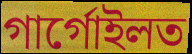
গাৰ্গোইলত